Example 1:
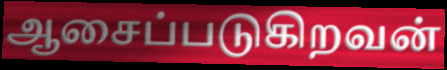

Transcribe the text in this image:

ஆசைப்படுகிறவன்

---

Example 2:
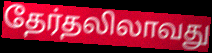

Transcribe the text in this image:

தேர்தலிலாவது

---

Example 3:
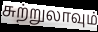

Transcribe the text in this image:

சுற்றுலாவும்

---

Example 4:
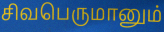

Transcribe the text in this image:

சிவபெருமானும்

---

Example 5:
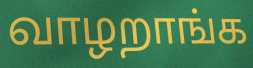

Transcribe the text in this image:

வாழறாங்க